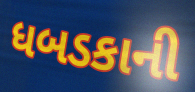
ધબડકાની